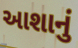
આશાનું